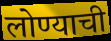
लोण्याची